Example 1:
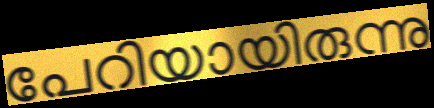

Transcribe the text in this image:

പേറിയായിരുന്നു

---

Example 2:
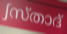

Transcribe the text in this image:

ഽസ്താദ്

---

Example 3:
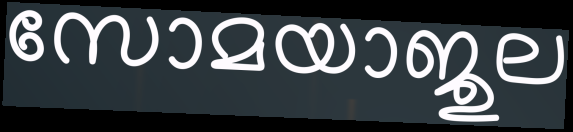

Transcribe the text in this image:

സോമയാജുല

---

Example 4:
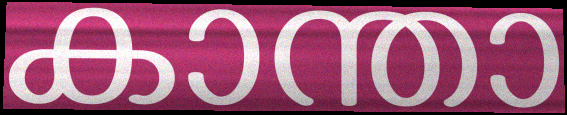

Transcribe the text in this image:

കാന്താ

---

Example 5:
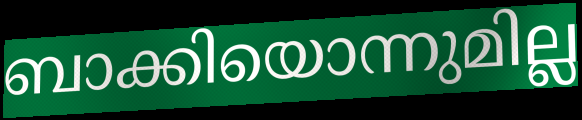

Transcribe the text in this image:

ബാക്കിയൊന്നുമില്ല